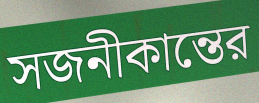
সজনীকান্তের